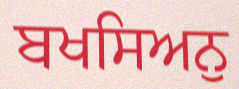
ਬਖਸਿਅਨੁ